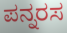
ಪನ್ನರಸ